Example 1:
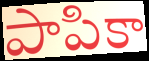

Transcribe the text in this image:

పాపికా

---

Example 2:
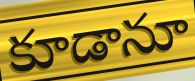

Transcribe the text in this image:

కూడానూ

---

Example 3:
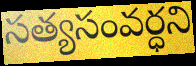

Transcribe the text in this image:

సత్యసంవర్ధని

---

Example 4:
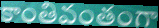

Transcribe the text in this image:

కాంతివంతంగా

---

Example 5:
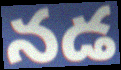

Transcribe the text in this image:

నడ